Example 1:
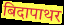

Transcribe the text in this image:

बिदापाथर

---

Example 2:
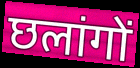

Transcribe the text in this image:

छलांगों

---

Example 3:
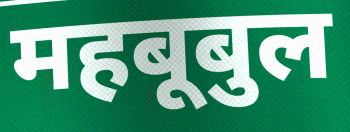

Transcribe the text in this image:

महबूबुल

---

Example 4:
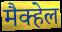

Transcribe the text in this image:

मैक्हेल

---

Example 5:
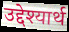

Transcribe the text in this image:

उद्देश्यार्थ